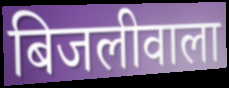
बिजलीवाला